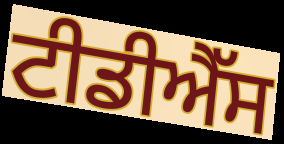
ਟੀਡੀਐੱਸ